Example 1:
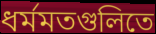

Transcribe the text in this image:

ধর্মমতগুলিতে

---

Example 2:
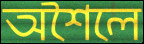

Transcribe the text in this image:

অশৈলে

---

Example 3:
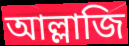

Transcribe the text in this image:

আল্লাজি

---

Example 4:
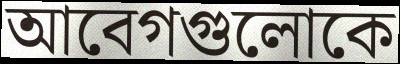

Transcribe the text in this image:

আবেগগুলোকে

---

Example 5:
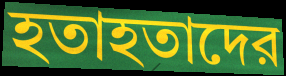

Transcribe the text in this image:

হতাহতাদের